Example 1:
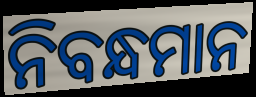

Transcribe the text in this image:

ନିବନ୍ଧମାନ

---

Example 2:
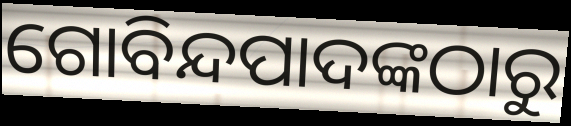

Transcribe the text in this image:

ଗୋବିନ୍ଦପାଦଙ୍କଠାରୁ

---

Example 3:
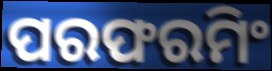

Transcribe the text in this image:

ପରଫରମିଂ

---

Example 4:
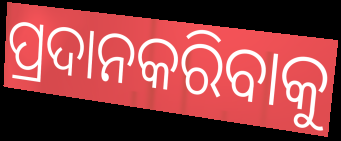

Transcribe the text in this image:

ପ୍ରଦାନକରିବାକୁ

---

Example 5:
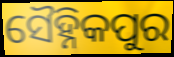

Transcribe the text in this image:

ସୈହ୍ନିକପୁର